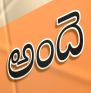
అందె